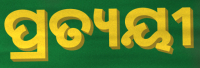
ପ୍ରତ୍ୟୟୀ